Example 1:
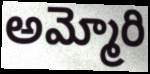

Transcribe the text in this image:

అమ్మోరి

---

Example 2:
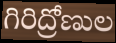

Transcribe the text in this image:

గిరిద్రోణుల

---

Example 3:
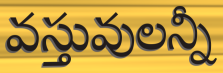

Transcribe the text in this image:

వస్తువులన్నీ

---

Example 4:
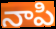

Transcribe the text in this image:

నాపి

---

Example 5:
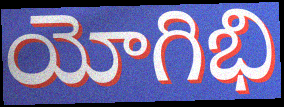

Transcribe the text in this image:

యోగిభి